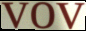
vov